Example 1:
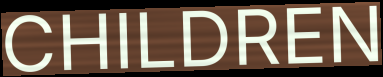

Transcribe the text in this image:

CHILDREN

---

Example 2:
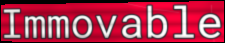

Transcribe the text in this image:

Immovable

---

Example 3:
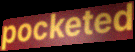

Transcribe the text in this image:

pocketed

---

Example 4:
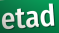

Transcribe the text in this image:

etad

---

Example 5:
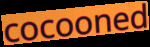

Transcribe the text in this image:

cocooned